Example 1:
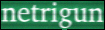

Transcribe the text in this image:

netrigun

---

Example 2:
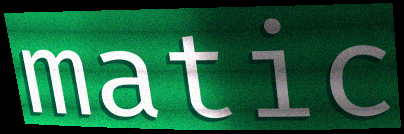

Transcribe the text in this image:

matic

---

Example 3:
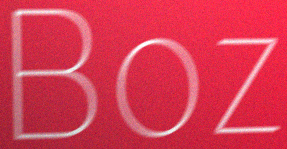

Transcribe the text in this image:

Boz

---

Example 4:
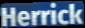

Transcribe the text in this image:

Herrick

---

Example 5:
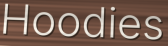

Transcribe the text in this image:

Hoodies